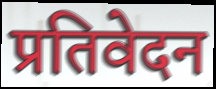
प्रतिवेदन